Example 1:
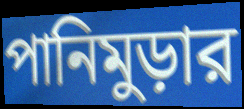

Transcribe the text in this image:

পানিমুড়ার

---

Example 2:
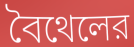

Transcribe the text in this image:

বৈথেলের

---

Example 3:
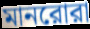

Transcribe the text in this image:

মানরোরা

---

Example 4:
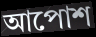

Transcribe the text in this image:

আপোশ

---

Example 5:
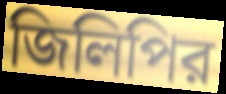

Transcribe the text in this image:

জিলিপির